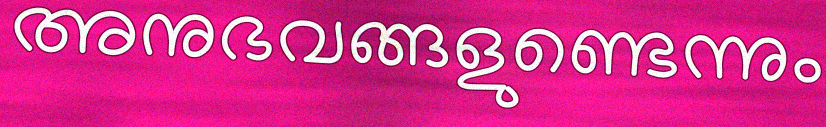
അനുഭവങ്ങളുണ്ടെന്നും